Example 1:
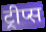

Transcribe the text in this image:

ट्रीप्स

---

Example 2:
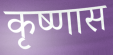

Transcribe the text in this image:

कृष्णास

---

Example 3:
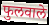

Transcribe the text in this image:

फुलवाले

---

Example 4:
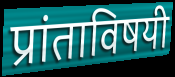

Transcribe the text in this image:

प्रांताविषयी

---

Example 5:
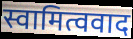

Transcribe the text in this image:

स्वामित्ववाद